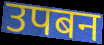
उपबन